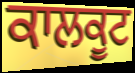
ਕਾਲਕੂਟ